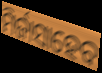
ମିର୍ଜାସାହେବ